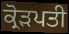
ਕ੍ਰੋੜਪਤੀ